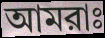
আমরাঃ